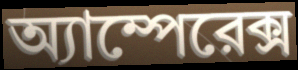
অ্যাম্পেরেক্স